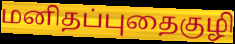
மனிதப்புதைகுழி